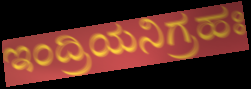
ಇಂದ್ರಿಯನಿಗ್ರಹಃ